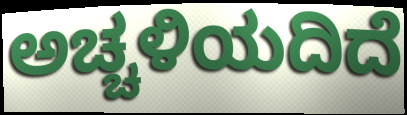
ಅಚ್ಚಳಿಯದಿದೆ